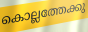
കൊല്ലത്തേക്കു